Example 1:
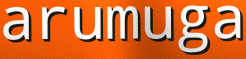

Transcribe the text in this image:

arumuga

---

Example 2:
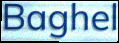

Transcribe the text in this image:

Baghel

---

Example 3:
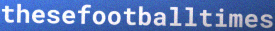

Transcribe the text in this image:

thesefootballtimes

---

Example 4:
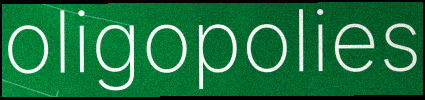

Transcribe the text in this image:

oligopolies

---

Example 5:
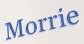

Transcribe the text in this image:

Morrie